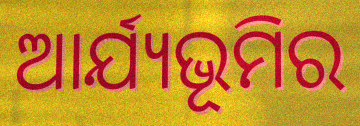
ଆର୍ଯ୍ୟଭୂମିର